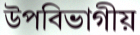
উপবিভাগীয়